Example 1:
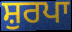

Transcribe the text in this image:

ਸ਼ੁਰਪਾ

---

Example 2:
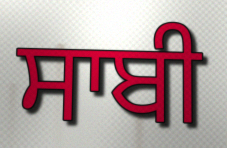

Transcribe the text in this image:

ਸਾਬੀ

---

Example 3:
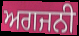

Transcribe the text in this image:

ਅਗਜਨੀ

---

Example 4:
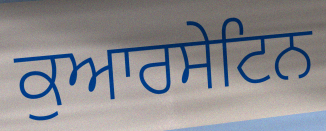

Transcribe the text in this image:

ਕੁਆਰਸੇਟਿਨ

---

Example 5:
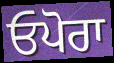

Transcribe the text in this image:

ਓਪੋਰਾ